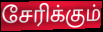
சேரிக்கும்